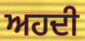
ਅਹਦੀ